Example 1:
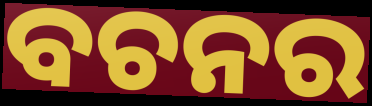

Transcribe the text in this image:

ବଚନର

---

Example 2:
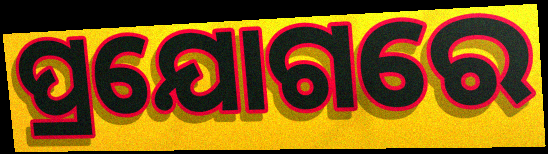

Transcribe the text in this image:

ପ୍ରଯୋଗରେ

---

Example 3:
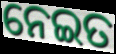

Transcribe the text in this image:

ନେଇତ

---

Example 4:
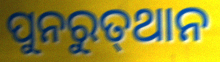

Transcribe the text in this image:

ପୁନରୁତ୍‍ଥାନ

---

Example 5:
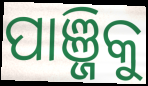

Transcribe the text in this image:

ପାଞ୍ଜିକୁ